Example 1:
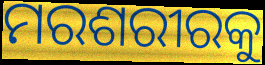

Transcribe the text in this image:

ମରଶରୀରକୁ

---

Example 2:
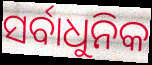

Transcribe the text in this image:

ସର୍ବାଧୁନିକ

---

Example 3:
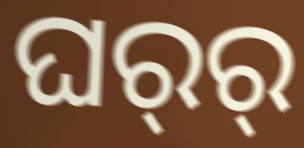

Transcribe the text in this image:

ଘର୍‍ର୍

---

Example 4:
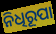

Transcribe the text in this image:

ନିଧିରୂପା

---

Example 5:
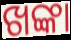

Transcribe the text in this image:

ଖଙ୍କା